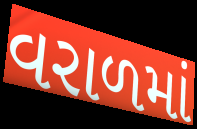
વરાળમાં